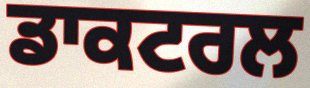
ਡਾਕਟਰਲ